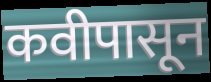
कवीपासून